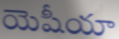
యెషీయా